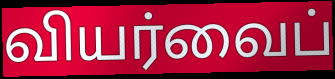
வியர்வைப்